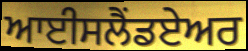
ਆਈਸਲੈਂਡਏਅਰ